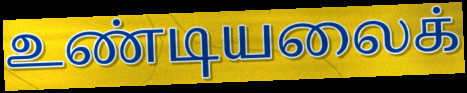
உண்டியலைக்